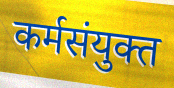
कर्मसंयुक्त